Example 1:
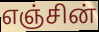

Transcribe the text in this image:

எஞ்சின்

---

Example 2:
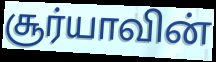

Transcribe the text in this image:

சூர்யாவின்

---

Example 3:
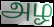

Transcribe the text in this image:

அழ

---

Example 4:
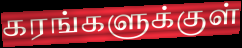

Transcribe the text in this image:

கரங்களுக்குள்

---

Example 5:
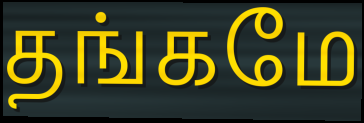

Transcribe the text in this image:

தங்கமே